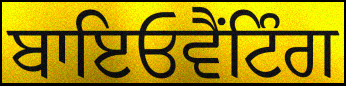
ਬਾਇਓਵੈਂਟਿੰਗ